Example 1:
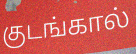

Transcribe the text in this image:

குடங்கால்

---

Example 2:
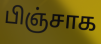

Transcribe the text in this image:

பிஞ்சாக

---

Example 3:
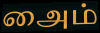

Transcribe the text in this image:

அைம்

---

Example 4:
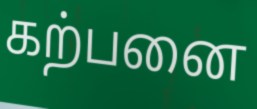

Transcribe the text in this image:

கற்பனை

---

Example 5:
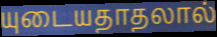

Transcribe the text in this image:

யுடையதாதலால்